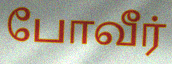
போவீர்